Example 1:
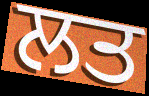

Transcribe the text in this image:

ਲਤ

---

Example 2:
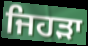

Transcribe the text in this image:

ਜਿਹੜਾ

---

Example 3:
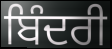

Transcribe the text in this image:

ਬਿੰਦਰੀ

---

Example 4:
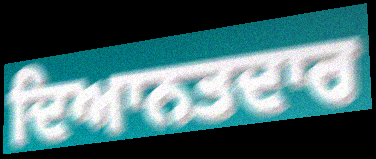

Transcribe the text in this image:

ਦਿਆਨਤਦਾਰ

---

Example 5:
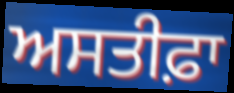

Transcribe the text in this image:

ਅਸਤੀਫ਼ਾ